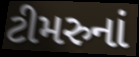
ટીમરુનાં